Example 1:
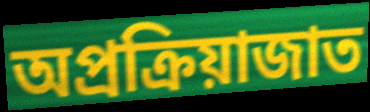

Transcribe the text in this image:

অপ্রক্রিয়াজাত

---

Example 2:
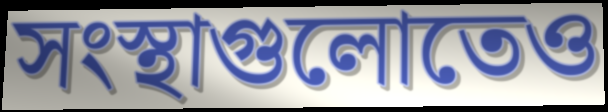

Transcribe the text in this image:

সংস্থাগুলোতেও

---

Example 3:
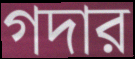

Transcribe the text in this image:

গদার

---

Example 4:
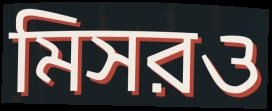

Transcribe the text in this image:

মিসরও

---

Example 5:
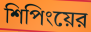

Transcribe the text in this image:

শিপিংয়ের